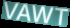
VAWT